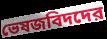
ভেষজবিদদের